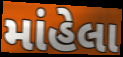
માંહેલા